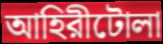
আহিরীটোলা